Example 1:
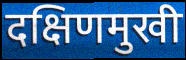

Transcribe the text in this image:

दक्षिणमुखी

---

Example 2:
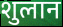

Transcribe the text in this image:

शुलान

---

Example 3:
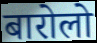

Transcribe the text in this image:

बारोलो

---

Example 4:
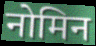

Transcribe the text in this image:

नोमिन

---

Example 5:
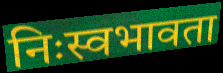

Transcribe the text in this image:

निःस्वभावता